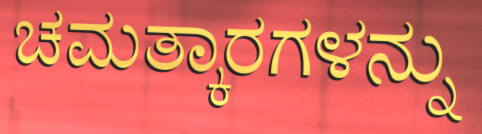
ಚಮತ್ಕಾರಗಳನ್ನು